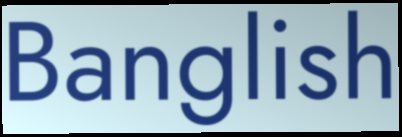
Banglish